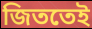
জিততেই